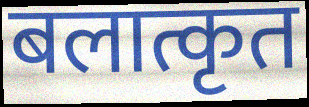
बलात्कृत